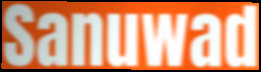
Sanuwad